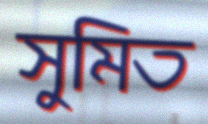
সুমিত